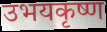
उभयकृष्ण